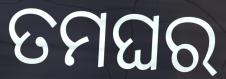
ତମଘର